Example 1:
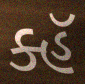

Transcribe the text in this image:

ક્હૅ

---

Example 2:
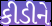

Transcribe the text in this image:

કીડીને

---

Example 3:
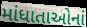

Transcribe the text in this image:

માંધાતાઓનાં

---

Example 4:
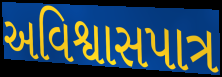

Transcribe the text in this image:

અવિશ્વાસપાત્ર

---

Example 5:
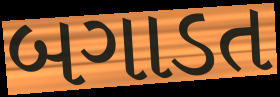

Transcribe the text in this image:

બગાડત